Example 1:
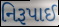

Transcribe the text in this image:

નિરૂપાઈ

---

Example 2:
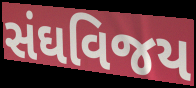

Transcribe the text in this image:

સંઘવિજય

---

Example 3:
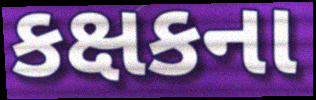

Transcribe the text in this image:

કક્ષકના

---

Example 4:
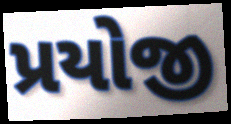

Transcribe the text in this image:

પ્રયોજી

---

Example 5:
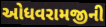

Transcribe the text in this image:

ઓધવરામજીની